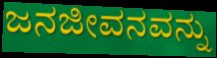
ಜನಜೀವನವನ್ನು